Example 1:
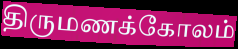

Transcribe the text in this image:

திருமணக்கோலம்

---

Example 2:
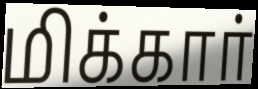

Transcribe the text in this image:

மிக்கார்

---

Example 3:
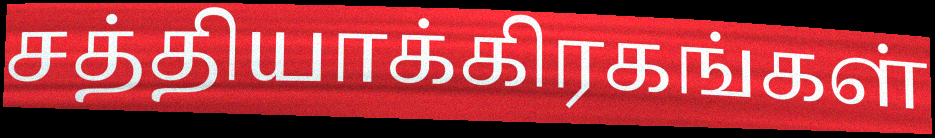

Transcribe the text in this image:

சத்தியாக்கிரகங்கள்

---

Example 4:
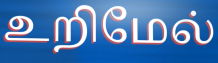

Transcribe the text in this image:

உறிமேல்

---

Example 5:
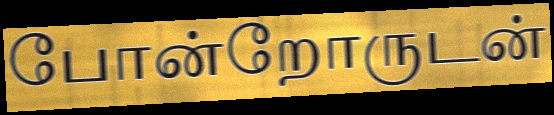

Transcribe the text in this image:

போன்றோருடன்